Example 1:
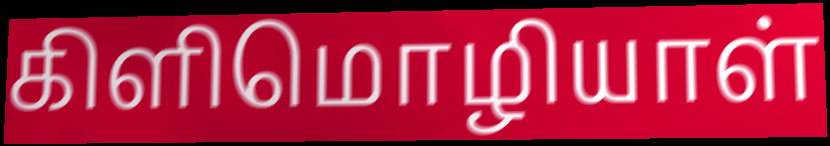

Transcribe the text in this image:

கிளிமொழியாள்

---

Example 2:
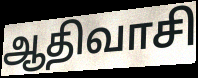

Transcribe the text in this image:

ஆதிவாசி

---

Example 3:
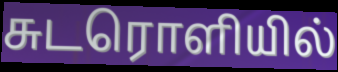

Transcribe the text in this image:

சுடரொளியில்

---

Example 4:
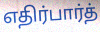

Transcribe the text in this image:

எதிர்பார்த்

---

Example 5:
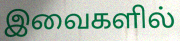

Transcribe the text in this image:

இவைகளில்